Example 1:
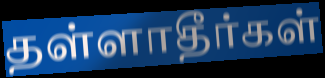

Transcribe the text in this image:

தள்ளாதீர்கள்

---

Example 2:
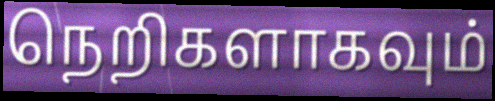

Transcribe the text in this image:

நெறிகளாகவும்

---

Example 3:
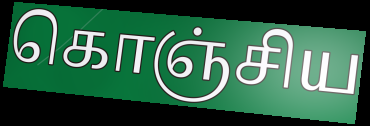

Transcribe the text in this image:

கொஞ்சிய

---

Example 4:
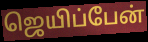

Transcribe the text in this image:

ஜெயிப்பேன்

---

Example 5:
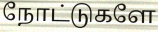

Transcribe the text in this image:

நோட்டுகளே